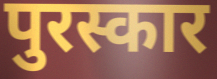
पुरस्कार